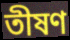
তীষণ